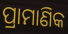
ପ୍ରାମାଣିକ